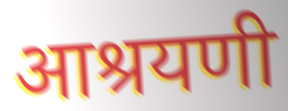
आश्रयणी